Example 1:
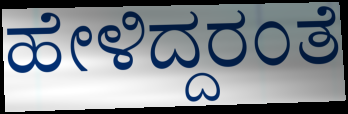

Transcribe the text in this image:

ಹೇಳಿದ್ದರಂತೆ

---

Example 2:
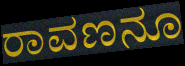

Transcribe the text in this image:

ರಾವಣನೂ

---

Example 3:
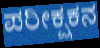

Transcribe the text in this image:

ಪರೀಕ್ಷಕನ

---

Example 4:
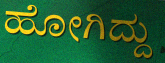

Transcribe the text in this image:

ಹೋಗಿದ್ದು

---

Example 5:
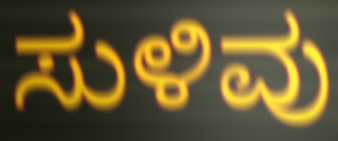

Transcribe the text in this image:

ಸುಳಿವು